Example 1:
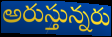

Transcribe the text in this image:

అరుస్తున్నరు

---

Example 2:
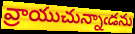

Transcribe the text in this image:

వ్రాయుచున్నాఁడను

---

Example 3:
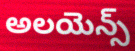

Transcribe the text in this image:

అలయెన్స్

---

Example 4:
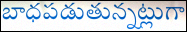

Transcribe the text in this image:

బాధపడుతున్నట్లుగా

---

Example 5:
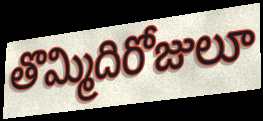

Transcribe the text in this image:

తొమ్మిదిరోజులూ